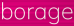
borage